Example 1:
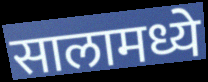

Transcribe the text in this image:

सालामध्ये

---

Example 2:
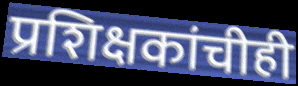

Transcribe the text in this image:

प्रशिक्षकांचीही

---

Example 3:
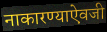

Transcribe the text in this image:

नाकारण्याऐवजी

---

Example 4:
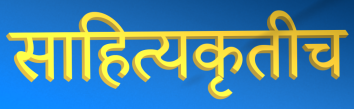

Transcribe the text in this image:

साहित्यकृतीच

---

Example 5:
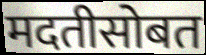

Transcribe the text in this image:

मदतीसोबत